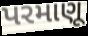
પરમાણૂ